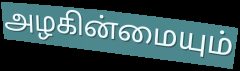
அழகின்மையும்